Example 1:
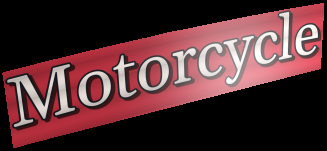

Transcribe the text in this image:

Motorcycle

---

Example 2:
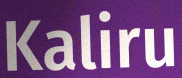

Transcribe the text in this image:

Kaliru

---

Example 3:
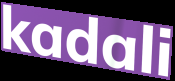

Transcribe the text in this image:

kadali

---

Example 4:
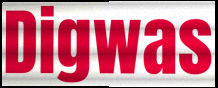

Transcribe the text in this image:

Digwas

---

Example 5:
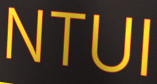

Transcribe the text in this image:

NTUI